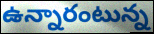
ఉన్నారంటున్న